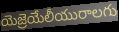
యెజ్రెయేలీయురాలగు